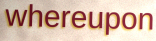
whereupon